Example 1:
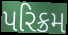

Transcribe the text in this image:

પરિક્રમ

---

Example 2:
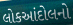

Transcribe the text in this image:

લોકઆંદોલનો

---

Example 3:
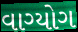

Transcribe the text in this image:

વાગ્યોગ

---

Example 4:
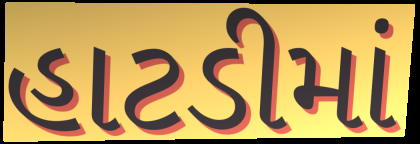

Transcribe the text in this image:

હાટડીમાં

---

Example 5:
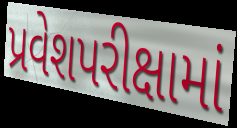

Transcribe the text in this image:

પ્રવેશપરીક્ષામાં